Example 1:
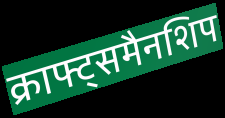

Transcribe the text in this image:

क्राफ्ट्समैनशिप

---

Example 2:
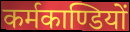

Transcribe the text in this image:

कर्मकाण्डियों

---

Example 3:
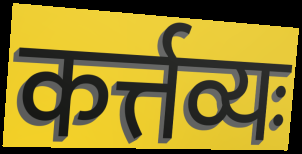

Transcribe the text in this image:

कर्त्तव्यः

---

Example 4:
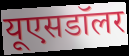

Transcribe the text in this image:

यूएसडॉलर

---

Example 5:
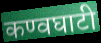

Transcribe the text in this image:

कण्वघाटी